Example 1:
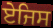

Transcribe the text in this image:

ਏਜਿਸ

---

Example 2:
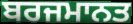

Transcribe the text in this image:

ਬਰਜਮਾਨਤ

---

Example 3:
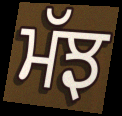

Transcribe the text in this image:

ਮੱਝ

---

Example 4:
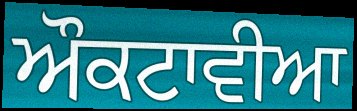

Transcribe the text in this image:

ਔਕਟਾਵੀਆ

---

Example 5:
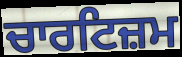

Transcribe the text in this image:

ਚਾਰਟਿਜ਼ਮ